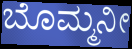
ಬೊಮ್ಮನೀ